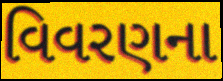
વિવરણના